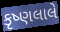
કૃષ્ણલાલે